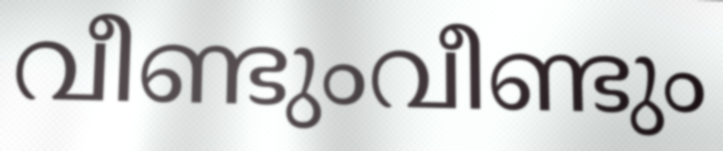
വീണ്ടുംവീണ്ടും